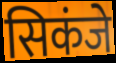
सिकंजे